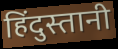
हिंदुस्तानी